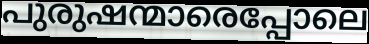
പുരുഷന്മാരെപ്പോലെ